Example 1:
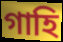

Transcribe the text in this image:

গাহি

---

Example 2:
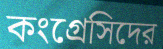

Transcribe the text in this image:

কংগ্রেসিদের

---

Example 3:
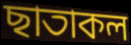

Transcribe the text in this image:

ছাতাকল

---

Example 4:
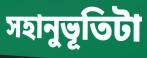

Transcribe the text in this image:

সহানুভূতিটা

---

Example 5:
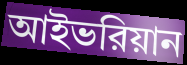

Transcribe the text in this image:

আইভরিয়ান